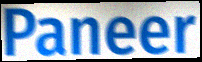
Paneer